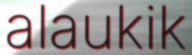
alaukik